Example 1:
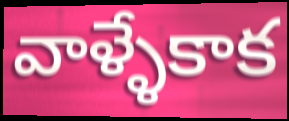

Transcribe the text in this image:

వాళ్ళేకాక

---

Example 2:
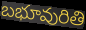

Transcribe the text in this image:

బభూవురితి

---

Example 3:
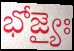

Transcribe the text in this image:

భోజ్యైః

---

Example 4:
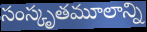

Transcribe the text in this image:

సంస్కృతమూలాన్ని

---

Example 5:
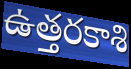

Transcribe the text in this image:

ఉత్తరకాశి